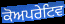
ਕੋਅਪਰੇਟਿਵ